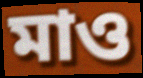
মাও